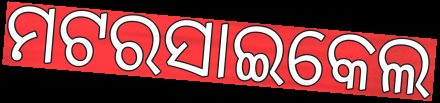
ମଟରସାଇକେଲ